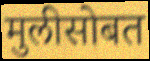
मुलीसोबत